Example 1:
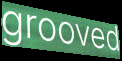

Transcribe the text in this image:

grooved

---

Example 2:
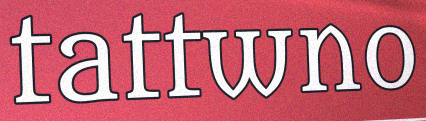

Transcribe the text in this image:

tattwno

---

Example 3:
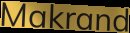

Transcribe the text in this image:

Makrand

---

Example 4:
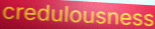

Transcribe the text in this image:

credulousness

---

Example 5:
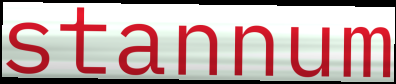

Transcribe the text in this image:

stannum